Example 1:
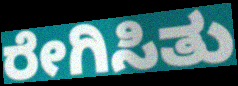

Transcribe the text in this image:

ರೇಗಿಸಿತು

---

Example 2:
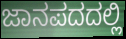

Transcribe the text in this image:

ಜಾನಪದದಲ್ಲಿ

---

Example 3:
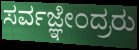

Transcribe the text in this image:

ಸರ್ವಜ್ಞೇಂದ್ರರು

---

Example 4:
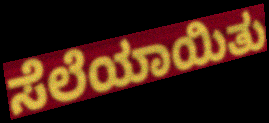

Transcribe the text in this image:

ಸೆಲೆಯಾಯಿತು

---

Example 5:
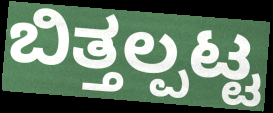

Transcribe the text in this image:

ಬಿತ್ತಲ್ಪಟ್ಟ